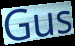
Gus